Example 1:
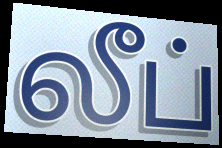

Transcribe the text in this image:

லீப்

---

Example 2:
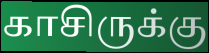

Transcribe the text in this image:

காசிருக்கு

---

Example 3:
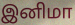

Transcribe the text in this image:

இனிமா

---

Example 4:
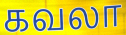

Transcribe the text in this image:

கவலா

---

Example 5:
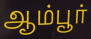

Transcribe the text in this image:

ஆம்பூர்